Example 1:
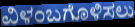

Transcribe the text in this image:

ವಿಳಂಬಗೊಳಿಸಲು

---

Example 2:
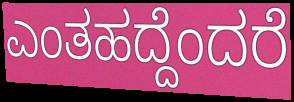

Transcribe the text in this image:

ಎಂತಹದ್ದೆಂದರೆ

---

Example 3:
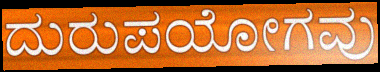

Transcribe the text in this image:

ದುರುಪಯೋಗವು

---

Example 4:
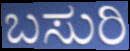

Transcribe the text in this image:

ಬಸುರಿ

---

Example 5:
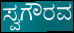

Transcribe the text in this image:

ಸ್ವಗೌರವ